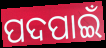
ପଦପାଇଁ